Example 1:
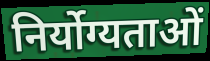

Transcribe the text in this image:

निर्योग्यताओं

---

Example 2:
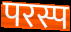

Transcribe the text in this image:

परस्प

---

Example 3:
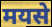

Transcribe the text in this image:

मयसे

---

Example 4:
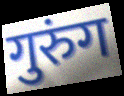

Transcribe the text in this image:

गुरुंग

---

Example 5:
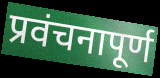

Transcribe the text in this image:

प्रवंचनापूर्ण